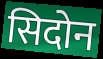
सिदोन